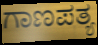
ಗಾಣಪತ್ಯ